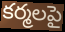
కర్మలపై